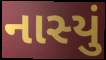
નાસ્યું